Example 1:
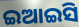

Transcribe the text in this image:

ଇଆଇସି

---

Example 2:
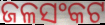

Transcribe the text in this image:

ଜଳସଂକଟ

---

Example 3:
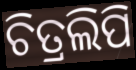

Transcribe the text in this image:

ଚିତ୍ରଲିପି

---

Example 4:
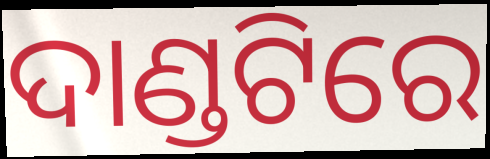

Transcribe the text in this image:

ଦାଣ୍ଡଟିରେ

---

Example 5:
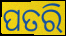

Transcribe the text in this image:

ପତରି